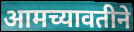
आमच्यावतीने